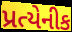
પ્રત્યેનીક